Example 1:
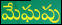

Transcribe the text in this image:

మేఘపు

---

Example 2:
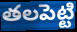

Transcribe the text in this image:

తలపెట్టి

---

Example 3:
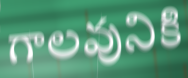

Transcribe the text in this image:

గాలవునికి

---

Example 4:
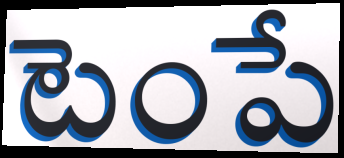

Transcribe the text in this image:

టెంపే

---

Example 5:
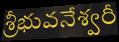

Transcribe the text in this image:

శ్రీభువనేశ్వరీ